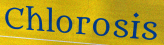
Chlorosis